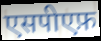
एसपीएफ़